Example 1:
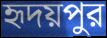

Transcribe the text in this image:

হৃদয়পুর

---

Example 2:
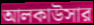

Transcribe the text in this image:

আলকাউসার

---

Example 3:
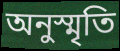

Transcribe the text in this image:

অনুস্মৃতি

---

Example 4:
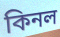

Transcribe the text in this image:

কিনল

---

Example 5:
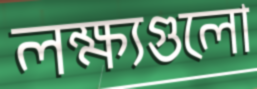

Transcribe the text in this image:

লক্ষ্যগুলো